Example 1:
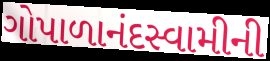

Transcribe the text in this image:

ગોપાળાનંદસ્વામીની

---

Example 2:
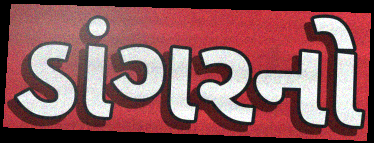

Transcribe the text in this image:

ડાંગરનો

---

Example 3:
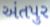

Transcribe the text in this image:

અંતપુર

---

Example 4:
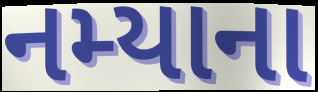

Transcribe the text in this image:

નમ્યાના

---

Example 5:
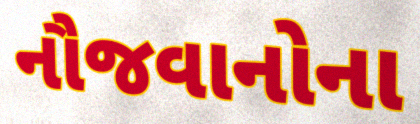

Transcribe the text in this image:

નૌજવાનોના